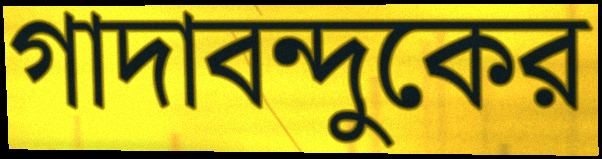
গাদাবন্দুকের